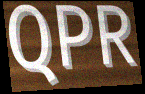
QPR